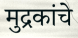
मुद्रकांचे